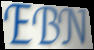
EBN